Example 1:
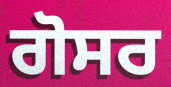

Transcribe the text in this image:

ਗੋਸਰ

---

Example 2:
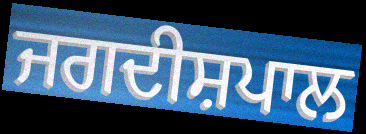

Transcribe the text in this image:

ਜਗਦੀਸ਼ਪਾਲ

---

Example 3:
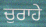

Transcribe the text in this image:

ਚੁਰਾਹੇ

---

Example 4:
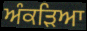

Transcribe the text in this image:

ਅੰਕੜਿਆ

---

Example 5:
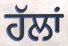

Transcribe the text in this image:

ਹੱਲਾਂ